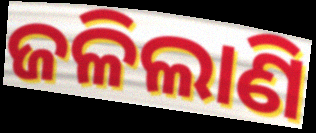
ଜଳିଲାଣି